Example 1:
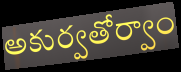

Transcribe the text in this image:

అకుర్వతోర్వాం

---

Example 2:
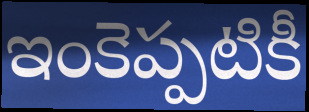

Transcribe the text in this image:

ఇంకెప్పటికీ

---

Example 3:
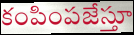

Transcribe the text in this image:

కంపింపజేస్తూ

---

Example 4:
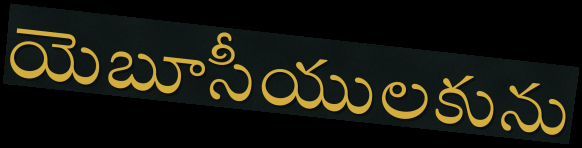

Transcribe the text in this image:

యెబూసీయులకును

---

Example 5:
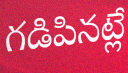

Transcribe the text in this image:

గడిపినట్లే